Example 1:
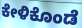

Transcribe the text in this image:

ಕೇಳಿಕೊಂಡೆ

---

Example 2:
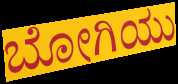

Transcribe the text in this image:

ಬೋಗಿಯು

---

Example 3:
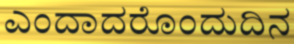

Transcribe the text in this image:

ಎಂದಾದರೊಂದುದಿನ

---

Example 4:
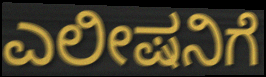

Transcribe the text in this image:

ಎಲೀಷನಿಗೆ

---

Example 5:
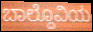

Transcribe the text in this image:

ಬಾಲ್ದೊವಿಯ